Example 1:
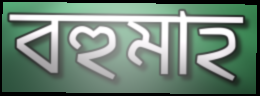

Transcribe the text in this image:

বহুমাহ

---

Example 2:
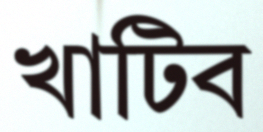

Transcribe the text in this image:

খাটিব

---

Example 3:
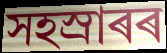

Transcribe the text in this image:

সহস্ৰাৰৰ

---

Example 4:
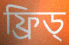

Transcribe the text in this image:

ফ্ৰিড্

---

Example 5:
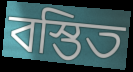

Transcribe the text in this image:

বস্তিত